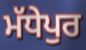
ਮੱਧੇਪੁਰ